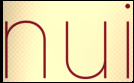
nui